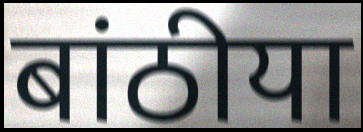
बांठीया